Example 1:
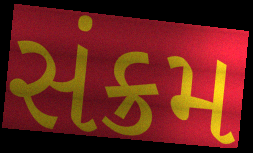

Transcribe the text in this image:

સંક્રમ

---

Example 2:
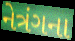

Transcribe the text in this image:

નેત્રંગના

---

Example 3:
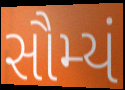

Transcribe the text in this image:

સૌમ્યં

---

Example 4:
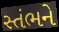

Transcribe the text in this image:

સ્તંભને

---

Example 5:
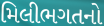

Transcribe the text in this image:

મિલીભગતનો